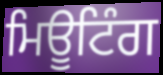
ਮਿਊਟਿੰਗ